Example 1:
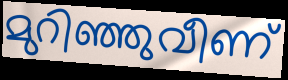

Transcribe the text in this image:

മുറിഞ്ഞുവീണ്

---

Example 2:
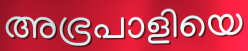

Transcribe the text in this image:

അഭ്രപാളിയെ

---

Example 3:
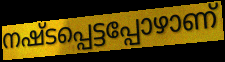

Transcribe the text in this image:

നഷ്ടപ്പെട്ടപ്പോഴാണ്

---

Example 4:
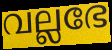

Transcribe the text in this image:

വല്ലഭേ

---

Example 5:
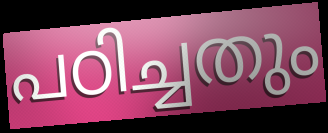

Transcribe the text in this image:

പഠിച്ചതും